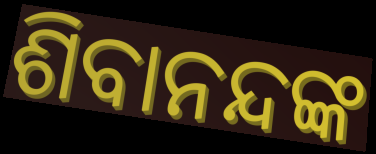
ଶିବାନନ୍ଦଙ୍କ